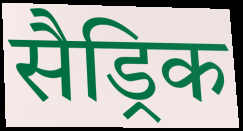
सैड्रिक